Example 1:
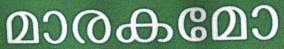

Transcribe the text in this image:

മാരകമോ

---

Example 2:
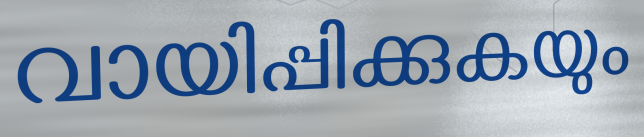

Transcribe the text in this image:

വായിപ്പിക്കുകയും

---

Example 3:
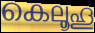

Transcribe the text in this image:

കെലൂഹൂ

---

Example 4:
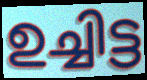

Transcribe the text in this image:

ഉച്ചിട്ട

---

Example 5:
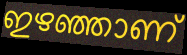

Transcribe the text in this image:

ഇഴഞ്ഞാണ്